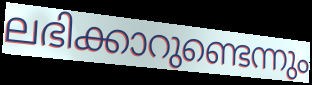
ലഭിക്കാറുണ്ടെന്നും